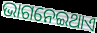
ଭାଗନେଇଥାଏ